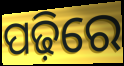
ପଢ଼ିରେ